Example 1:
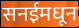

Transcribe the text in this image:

सनईमधून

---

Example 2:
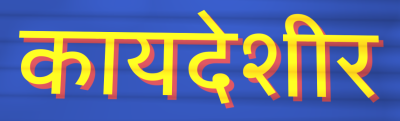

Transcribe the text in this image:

कायदेशीर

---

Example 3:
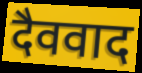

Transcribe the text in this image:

दैववाद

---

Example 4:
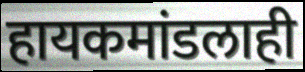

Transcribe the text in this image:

हायकमांडलाही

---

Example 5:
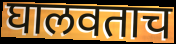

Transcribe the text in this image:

घालवताच